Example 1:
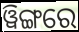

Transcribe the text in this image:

ୱିଙ୍ଗରେ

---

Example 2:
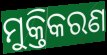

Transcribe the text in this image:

ମୁକ୍ତିକରଣ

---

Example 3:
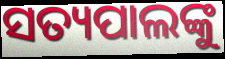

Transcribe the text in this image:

ସତ୍ୟପାଲଙ୍କୁ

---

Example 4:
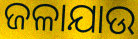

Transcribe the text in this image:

ଜଳାଯାଉ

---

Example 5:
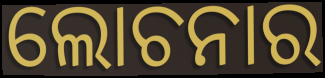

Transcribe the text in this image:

ଲୋଚନାର